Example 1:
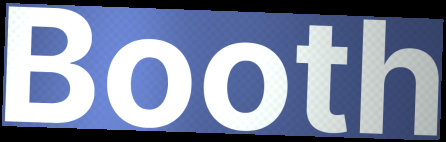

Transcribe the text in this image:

Booth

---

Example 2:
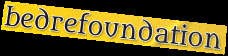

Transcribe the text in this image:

bedrefoundation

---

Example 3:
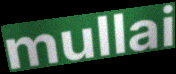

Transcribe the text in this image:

mullai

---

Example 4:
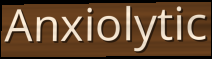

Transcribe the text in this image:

Anxiolytic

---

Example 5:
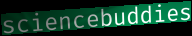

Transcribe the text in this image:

sciencebuddies